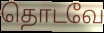
தொடவே